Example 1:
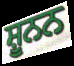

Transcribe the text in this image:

ਸ਼ੂਨਨ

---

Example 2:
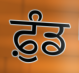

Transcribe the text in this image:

ਫ਼ੁੰਡ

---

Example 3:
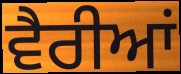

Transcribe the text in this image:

ਵੈਰੀਆਂ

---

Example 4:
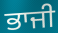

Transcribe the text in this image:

ਭਾਜੀ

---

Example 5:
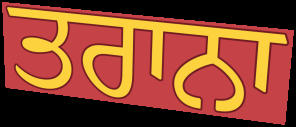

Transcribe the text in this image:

ਤਰਾਨਾ